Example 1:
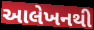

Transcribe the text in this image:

આલેખનથી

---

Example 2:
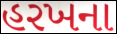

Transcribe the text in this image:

હરખના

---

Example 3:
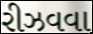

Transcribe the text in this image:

રીઝવવા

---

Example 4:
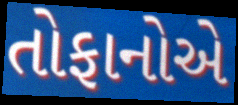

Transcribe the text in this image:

તોફાનોએ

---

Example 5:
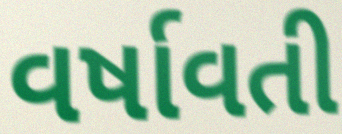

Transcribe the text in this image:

વર્ષાવતી